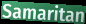
Samaritan